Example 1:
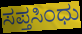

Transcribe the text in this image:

ಸಪ್ತಸಿಂಧು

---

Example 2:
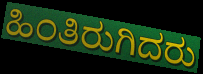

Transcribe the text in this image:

ಹಿಂತಿರುಗಿದರು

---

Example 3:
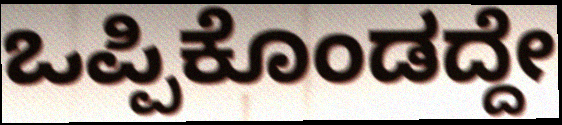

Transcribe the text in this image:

ಒಪ್ಪಿಕೊಂಡದ್ದೇ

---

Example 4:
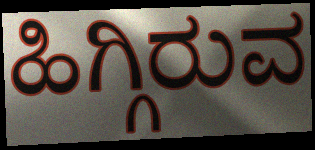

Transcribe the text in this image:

ಹಿಗ್ಗಿರುವ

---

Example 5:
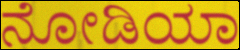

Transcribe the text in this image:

ನೋಡಿಯಾ